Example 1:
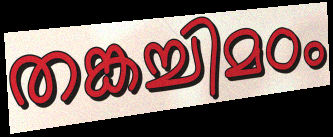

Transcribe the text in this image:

തങ്കച്ചിമഠം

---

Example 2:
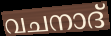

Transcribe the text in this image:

വചനാദ്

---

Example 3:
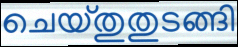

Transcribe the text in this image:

ചെയ്തുതുടങ്ങി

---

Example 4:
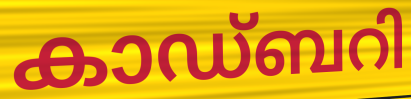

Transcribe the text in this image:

കാഡ്ബറി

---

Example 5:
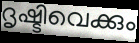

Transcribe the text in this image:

ദൃഷ്ടിവെക്കും